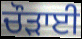
ਚੌੜਾਈ